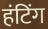
हंटिंग